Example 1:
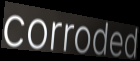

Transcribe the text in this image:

corroded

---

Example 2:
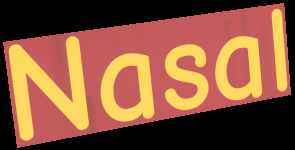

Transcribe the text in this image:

Nasal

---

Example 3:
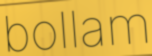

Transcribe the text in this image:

bollam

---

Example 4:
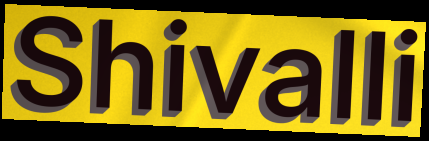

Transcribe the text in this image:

Shivalli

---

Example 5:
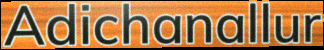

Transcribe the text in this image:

Adichanallur